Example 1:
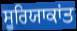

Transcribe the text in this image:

ਸੂਰਿਯਾਕਾਂਤ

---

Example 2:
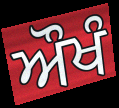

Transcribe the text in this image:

ਔਖੰ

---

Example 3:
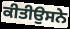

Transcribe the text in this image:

ਕੀਤੀਉਸਨੇ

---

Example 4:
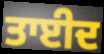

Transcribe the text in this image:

ਤਾਈਦ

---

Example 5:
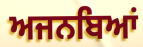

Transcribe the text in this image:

ਅਜਨਬਿਆਂ